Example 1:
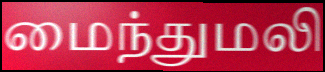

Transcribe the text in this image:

மைந்துமலி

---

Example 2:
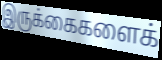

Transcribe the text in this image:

இருக்கைகளைக்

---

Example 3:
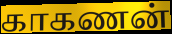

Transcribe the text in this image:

காகணன்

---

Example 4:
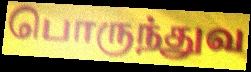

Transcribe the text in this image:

பொருந்துவ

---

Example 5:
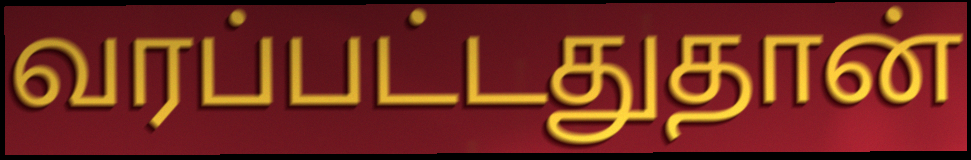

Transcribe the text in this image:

வரப்பட்டதுதான்